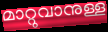
മാറ്റുവാനുള്ള